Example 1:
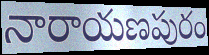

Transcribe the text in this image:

నారాయణపురం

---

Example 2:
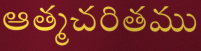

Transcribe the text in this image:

ఆత్మచరితము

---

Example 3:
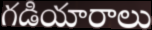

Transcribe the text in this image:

గడియారాలు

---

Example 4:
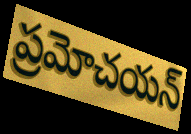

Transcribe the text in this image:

ప్రమోచయన్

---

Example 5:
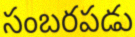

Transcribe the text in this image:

సంబరపడు